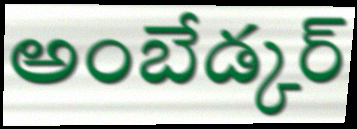
అంబేడ్కర్